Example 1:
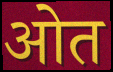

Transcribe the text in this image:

ओत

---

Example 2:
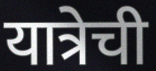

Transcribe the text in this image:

यात्रेची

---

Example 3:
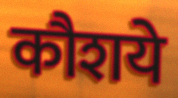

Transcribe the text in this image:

कौशये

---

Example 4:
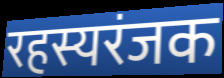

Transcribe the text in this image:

रहस्यरंजक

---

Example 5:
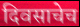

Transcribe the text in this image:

दिवसाचेच